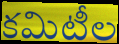
కమిటీల